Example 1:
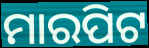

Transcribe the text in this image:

ମାରପିଟ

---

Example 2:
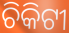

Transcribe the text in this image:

ଚିକିଟୀ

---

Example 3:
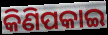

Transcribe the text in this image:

କିଣିପକାଇ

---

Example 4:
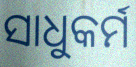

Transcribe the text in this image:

ସାଧୁକର୍ମ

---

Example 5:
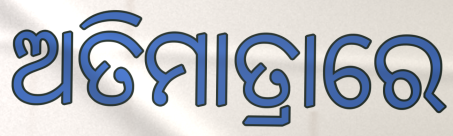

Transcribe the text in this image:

ଅତିମାତ୍ରାରେ